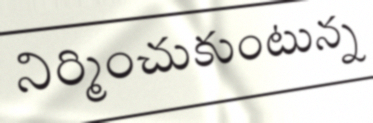
నిర్మించుకుంటున్న